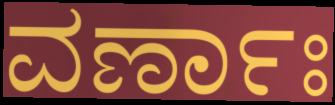
ವರ್ಣಾಃ